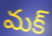
మక్